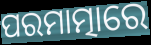
ପରମାତ୍ମାରେ